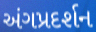
અંગપ્રદર્શન